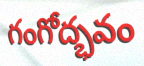
గంగోద్భవం